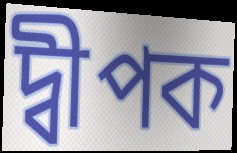
দ্বীপক